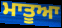
ਮਾਤੂਆ